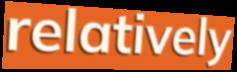
relatively